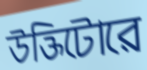
উক্তিটোৱে